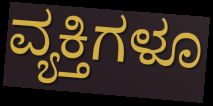
ವ್ಯಕ್ತಿಗಳೂ